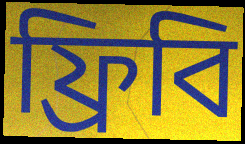
ফ্রিবি